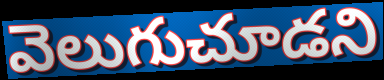
వెలుగుచూడని